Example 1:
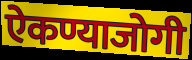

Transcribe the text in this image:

ऐकण्याजोगी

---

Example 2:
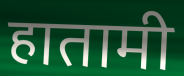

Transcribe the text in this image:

हातामी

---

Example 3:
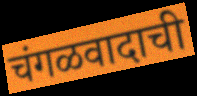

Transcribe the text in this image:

चंगळवादाची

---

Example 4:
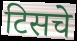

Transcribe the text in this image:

टिसचे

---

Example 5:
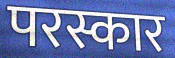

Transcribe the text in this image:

परस्कार